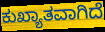
ಕುಖ್ಯಾತವಾಗಿದೆ